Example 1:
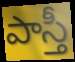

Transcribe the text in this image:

పాస్తీ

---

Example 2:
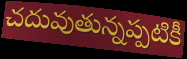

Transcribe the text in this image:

చదువుతున్నప్పటికీ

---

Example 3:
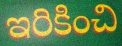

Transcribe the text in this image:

ఇరికించి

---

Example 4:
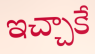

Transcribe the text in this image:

ఇచ్చాకే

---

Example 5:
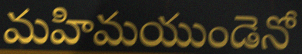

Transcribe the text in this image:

మహిమయుండెనో